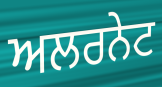
ਅਲਰਨੇਟ